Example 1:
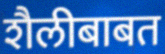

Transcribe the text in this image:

शैलीबाबत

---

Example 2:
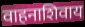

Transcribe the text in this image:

वाहनाशिवाय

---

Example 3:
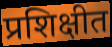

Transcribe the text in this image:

प्रशिक्षीत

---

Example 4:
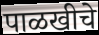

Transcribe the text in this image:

पाळखीचे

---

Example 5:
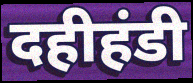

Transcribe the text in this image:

दहीहंडी